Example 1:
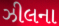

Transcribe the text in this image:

ઝીલના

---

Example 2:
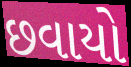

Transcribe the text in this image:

છવાયો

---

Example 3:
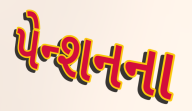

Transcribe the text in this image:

પેન્શનના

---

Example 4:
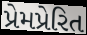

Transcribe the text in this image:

પ્રેમપ્રેરિત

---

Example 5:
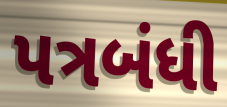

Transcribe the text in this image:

પત્રબંધી